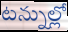
టన్నుల్లో